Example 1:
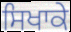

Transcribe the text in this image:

ਸਿਖਾਕੇ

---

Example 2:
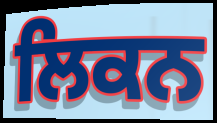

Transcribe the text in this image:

ਲਿਕਨ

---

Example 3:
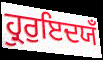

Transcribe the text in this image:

ਹ੍ਰੁਰੁਇਦਯਁ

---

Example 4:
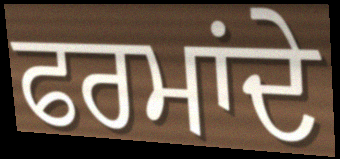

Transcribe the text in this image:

ਫਰਮਾਂਦੇ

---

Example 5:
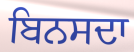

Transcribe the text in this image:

ਬਿਨਸਦਾ